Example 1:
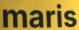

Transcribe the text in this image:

maris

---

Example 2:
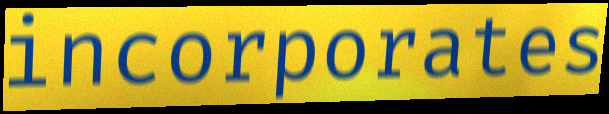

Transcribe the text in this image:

incorporates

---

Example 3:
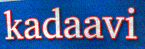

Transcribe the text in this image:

kadaavi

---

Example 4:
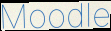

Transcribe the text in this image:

Moodle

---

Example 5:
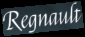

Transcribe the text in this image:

Regnault